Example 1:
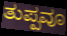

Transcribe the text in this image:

ತುಪ್ಪವೂ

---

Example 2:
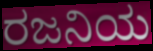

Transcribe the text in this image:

ರಜನಿಯ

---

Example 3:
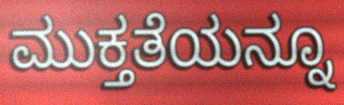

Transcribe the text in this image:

ಮುಕ್ತತೆಯನ್ನೂ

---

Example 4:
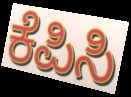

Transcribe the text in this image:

ಕೆಪಿಸಿ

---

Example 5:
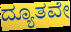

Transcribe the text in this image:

ದ್ಯೂತವೇ